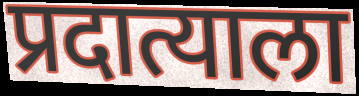
प्रदात्याला